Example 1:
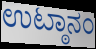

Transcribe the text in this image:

ಉಟ್ಠಾನಂ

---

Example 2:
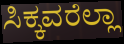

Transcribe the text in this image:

ಸಿಕ್ಕವರೆಲ್ಲಾ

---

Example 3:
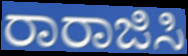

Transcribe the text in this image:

ರಾರಾಜಿಸಿ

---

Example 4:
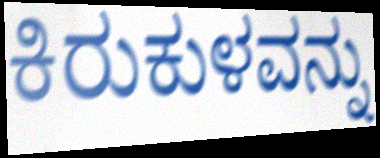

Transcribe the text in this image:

ಕಿರುಕುಳವನ್ನು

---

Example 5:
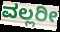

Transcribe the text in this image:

ವಲ್ಲರೀ